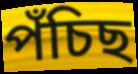
পঁচিছ